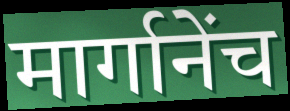
मार्गानेंच